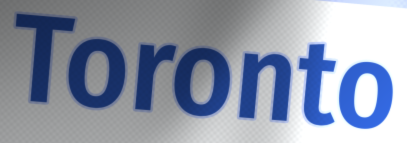
Toronto